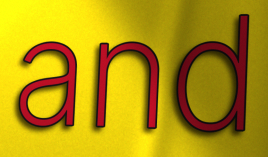
and